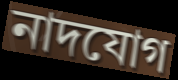
নাদযোগ